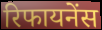
रिफायनेंस